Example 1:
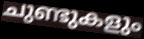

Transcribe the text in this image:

ചുണ്ടുകളും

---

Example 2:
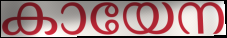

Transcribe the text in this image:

കായേന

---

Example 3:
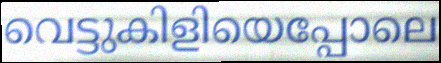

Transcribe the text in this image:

വെട്ടുകിളിയെപ്പോലെ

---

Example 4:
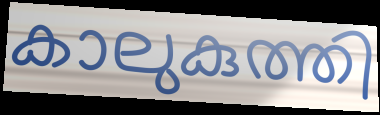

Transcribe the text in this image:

കാലുകുത്തി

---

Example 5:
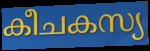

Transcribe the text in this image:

കീചകസ്യ